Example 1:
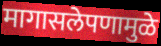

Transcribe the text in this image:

मागासलेपणामुळे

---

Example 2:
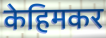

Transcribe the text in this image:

केहिमकर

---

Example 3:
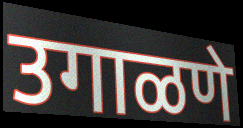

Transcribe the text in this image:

उगाळणे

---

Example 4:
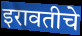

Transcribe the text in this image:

इरावतीचे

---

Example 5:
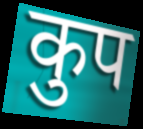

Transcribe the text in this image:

कुप